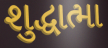
શુદ્ધાત્મા